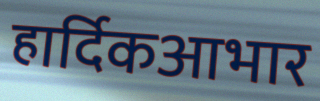
हार्दिकआभार